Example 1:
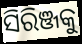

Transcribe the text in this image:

ସିରିଞ୍ଜକୁ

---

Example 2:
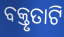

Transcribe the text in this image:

ବକ୍ତୃତାଟି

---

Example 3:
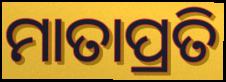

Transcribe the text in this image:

ମାତାପ୍ରତି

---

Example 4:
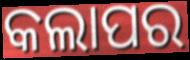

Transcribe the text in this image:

କଲାପର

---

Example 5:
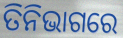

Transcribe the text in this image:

ତିନିଭାଗରେ